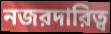
নজরদারিত্ব